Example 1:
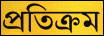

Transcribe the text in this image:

প্ৰতিক্ৰম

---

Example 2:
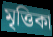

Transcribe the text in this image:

মৃত্তিকা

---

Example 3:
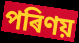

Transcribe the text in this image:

পৰিণয়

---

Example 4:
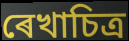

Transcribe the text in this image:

ৰেখাচিত্ৰ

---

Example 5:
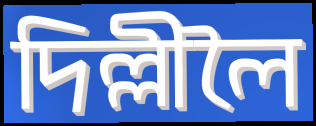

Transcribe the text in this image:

দিল্লীলৈ